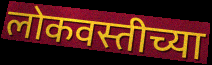
लोकवस्तीच्या